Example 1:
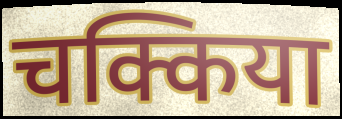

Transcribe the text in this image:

चक्किया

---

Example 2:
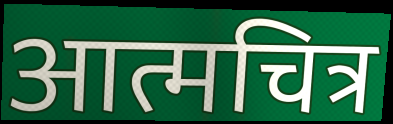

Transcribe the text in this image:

आत्मचित्र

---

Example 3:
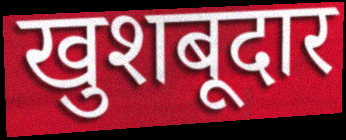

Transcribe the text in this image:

खुशबूदार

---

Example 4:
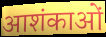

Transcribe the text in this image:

आशंकाओं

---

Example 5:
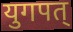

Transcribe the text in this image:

युगपत्